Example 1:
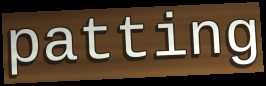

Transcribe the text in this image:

patting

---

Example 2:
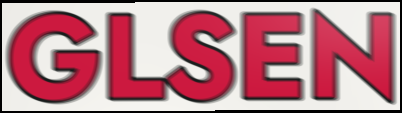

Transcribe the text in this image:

GLSEN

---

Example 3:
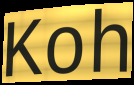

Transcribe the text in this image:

Koh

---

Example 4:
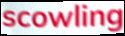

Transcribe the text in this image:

scowling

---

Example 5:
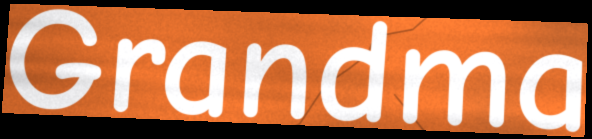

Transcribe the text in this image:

Grandma